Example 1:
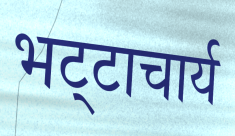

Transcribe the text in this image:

भट्‍टाचार्य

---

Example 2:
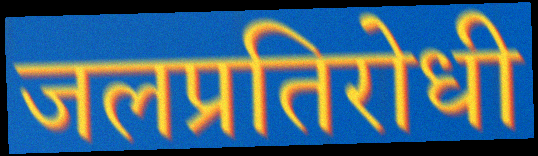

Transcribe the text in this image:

जलप्रतिरोधी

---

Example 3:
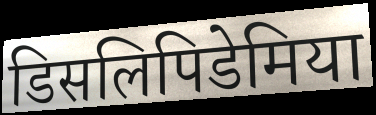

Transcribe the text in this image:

डिसलिपिडेमिया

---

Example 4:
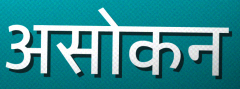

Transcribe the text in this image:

असोकन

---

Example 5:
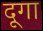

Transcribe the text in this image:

दूगा